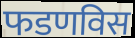
फडणविस